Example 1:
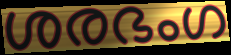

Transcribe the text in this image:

ശരഭംഗ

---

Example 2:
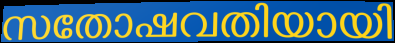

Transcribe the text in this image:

സതോഷവതിയായി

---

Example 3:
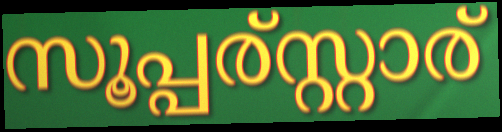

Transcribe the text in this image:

സൂപ്പര്സ്റ്റാര്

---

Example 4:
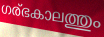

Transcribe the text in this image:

ഗര്ഭകാലത്തും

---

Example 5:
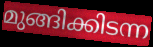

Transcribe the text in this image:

മുങ്ങിക്കിടന്ന